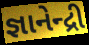
જ્ઞાનેન્દ્રી